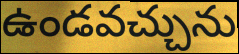
ఉండవచ్చును